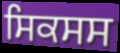
ਸਿਕਸਸ